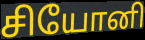
சியோனி